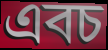
এবচ